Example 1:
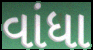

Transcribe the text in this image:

વાંધા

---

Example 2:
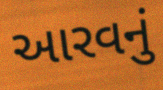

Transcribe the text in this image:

આરવનું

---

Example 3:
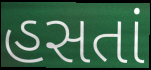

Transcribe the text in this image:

હસતાં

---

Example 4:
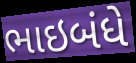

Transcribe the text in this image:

ભાઇબંધે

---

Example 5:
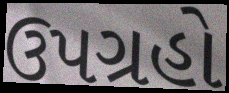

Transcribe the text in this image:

ઉપગ્રહો